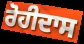
ਰੋਹੀਦਾਸ